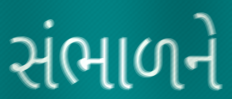
સંભાળને